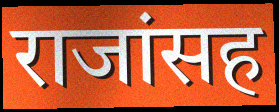
राजांसह